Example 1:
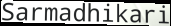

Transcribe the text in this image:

Sarmadhikari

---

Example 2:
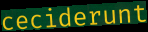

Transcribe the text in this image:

ceciderunt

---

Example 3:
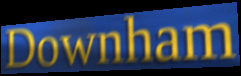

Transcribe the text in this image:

Downham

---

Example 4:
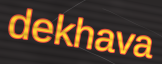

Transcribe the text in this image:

dekhava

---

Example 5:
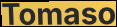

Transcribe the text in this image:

Tomaso